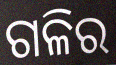
ଗଳିର